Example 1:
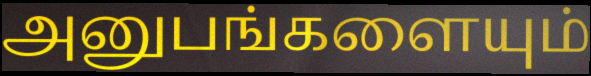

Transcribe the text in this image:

அனுபங்களையும்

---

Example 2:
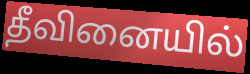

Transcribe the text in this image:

தீவினையில்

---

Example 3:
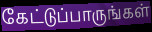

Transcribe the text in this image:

கேட்டுப்பாருங்கள்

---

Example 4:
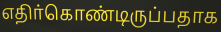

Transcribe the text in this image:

எதிர்கொண்டிருப்பதாக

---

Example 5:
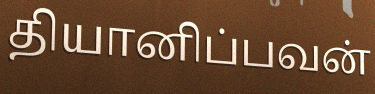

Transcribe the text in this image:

தியானிப்பவன்